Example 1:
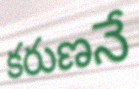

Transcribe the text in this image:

కరుణనే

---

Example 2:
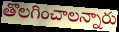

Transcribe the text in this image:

తొలగించాలన్నారు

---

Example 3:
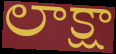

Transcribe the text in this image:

లాక్షా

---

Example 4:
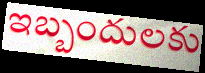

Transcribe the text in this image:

ఇబ్బందులకు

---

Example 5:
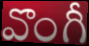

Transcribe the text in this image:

వొంగీ